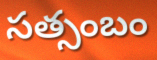
సత్సంబం